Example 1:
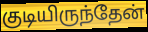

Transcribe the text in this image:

குடியிருந்தேன்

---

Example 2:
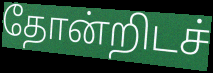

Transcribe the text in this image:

தோன்றிடச்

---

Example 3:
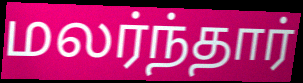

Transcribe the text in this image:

மலர்ந்தார்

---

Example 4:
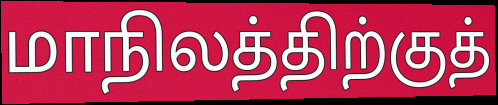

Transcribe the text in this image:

மாநிலத்திற்குத்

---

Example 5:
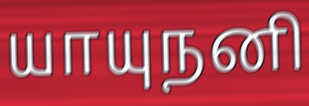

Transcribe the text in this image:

யாயுநனி